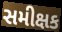
સમીક્ષક